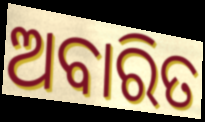
ଅବାରିତ